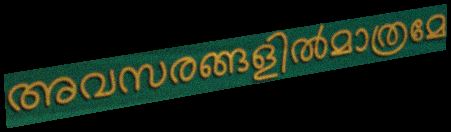
അവസരങ്ങളിൽമാത്രമേ